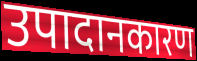
उपादानकारण